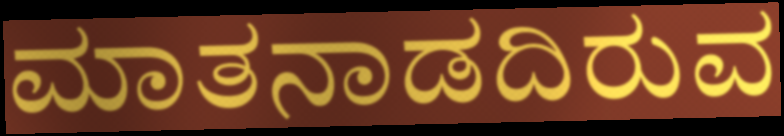
ಮಾತನಾಡದಿರುವ